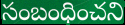
సంబంధించని